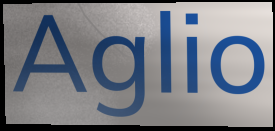
Aglio